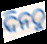
ଦିନଠୁ